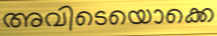
അവിടെയൊക്കെ